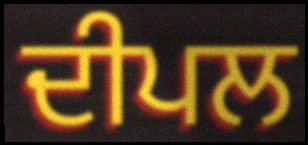
ਦੀਪਲ